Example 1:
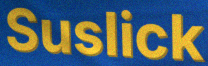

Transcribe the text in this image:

Suslick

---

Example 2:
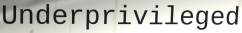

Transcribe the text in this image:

Underprivileged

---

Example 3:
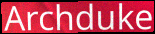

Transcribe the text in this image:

Archduke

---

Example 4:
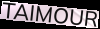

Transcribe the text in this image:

TAIMOUR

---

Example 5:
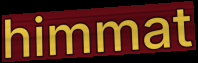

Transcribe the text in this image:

himmat